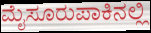
ಮೈಸೂರುಪಾಕಿನಲ್ಲಿ